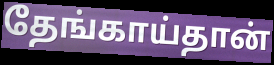
தேங்காய்தான்